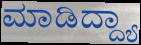
ಮಾಡಿದ್ದ್ಯಾ